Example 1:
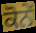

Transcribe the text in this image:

ਕੋਨੇਂ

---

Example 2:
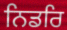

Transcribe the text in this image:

ਨਿਡਰਿ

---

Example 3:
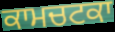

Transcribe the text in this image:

ਕਾਮਚਟਕਾ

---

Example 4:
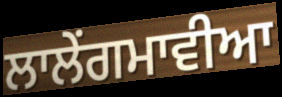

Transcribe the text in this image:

ਲਾਲੇਂਗਮਾਵੀਆ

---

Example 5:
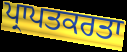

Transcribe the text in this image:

ਪ੍ਰਾਪਤਕਰਤਾ